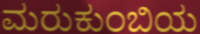
ಮರುಕುಂಬಿಯ